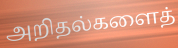
அறிதல்களைத்